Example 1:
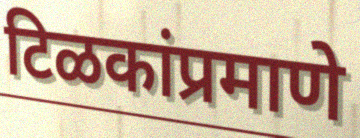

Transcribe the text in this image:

टिळकांप्रमाणे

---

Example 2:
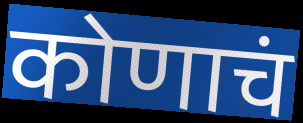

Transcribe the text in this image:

कोणाचं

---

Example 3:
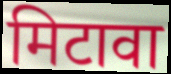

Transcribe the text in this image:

मिटावा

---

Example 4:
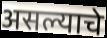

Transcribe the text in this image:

असल्याचे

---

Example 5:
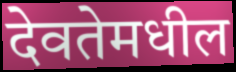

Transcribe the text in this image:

देवतेमधील